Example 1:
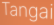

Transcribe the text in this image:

Tangai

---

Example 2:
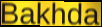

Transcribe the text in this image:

Bakhda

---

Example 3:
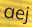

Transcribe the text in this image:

aej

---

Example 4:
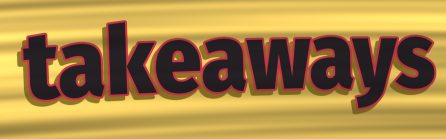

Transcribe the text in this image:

takeaways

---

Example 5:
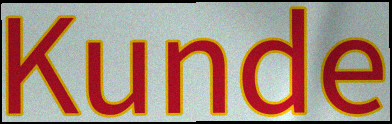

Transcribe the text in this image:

Kunde